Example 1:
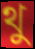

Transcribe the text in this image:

থু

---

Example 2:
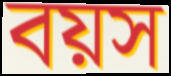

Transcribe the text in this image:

বয়স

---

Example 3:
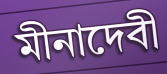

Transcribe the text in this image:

মীনাদেবী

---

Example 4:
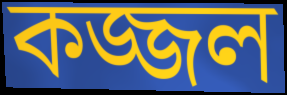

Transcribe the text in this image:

কজ্জল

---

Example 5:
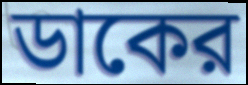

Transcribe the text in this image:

ডাকের